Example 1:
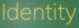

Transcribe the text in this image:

Identity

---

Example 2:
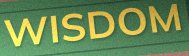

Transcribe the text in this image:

WISDOM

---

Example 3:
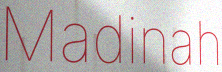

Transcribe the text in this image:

Madinah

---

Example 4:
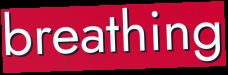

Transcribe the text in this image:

breathing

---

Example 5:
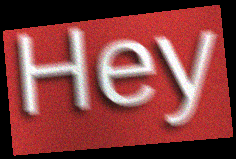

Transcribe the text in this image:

Hey